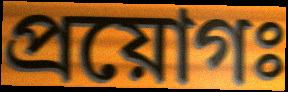
প্রয়োগঃ